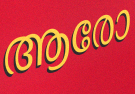
ആരോ